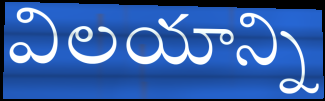
విలయాన్ని